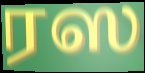
ரஸ